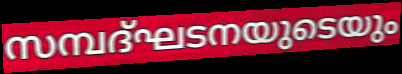
സമ്പദ്ഘടനയുടെയും